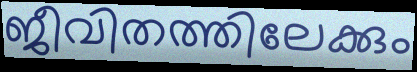
ജീവിതത്തിലേക്കും